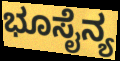
ಭೂಸೈನ್ಯ